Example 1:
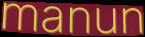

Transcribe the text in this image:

manun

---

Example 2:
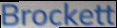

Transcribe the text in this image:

Brockett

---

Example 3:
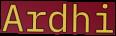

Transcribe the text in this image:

Ardhi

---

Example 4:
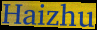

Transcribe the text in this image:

Haizhu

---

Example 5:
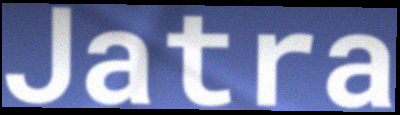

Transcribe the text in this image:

Jatra